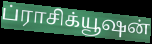
ப்ராசிக்யூஷன்